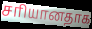
சரியானதாக